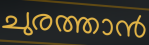
ചുരത്താൻ